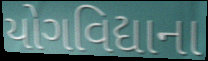
યોગવિદ્યાના